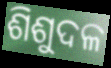
ଶିଶୁଦଳ